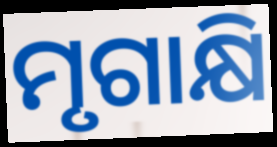
ମୃଗାକ୍ଷି